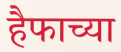
हैफाच्या